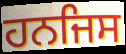
ਹਨਜਿਸ